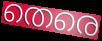
തെരെ